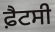
ਫ਼ੈਟਸੀ